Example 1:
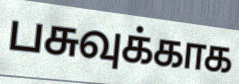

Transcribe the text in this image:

பசுவுக்காக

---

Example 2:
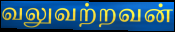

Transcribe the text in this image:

வலுவற்றவன்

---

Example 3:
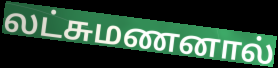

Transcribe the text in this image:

லட்சுமணனால்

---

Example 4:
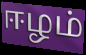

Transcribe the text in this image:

ஈழம்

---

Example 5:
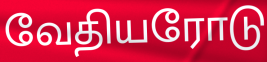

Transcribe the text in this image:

வேதியரோடு